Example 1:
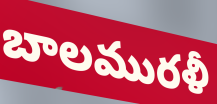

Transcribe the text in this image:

బాలమురళీ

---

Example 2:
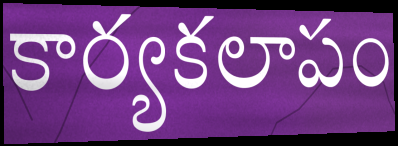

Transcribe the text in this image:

కార్యకలాపం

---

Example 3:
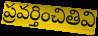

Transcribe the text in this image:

ప్రవర్తించితివి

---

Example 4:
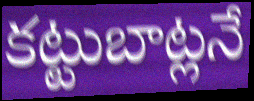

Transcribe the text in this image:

కట్టుబాట్లనే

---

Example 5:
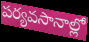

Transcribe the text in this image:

పర్యవసానాల్లో